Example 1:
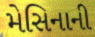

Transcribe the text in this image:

મેસિનાની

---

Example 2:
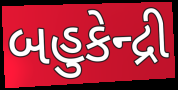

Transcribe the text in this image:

બહુકેન્દ્રી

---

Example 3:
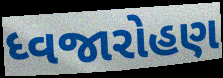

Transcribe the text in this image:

ધ્વજારોહણ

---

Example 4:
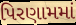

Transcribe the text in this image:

પિરણામમાં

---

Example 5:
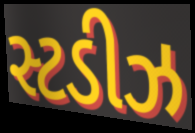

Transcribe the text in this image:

સ્ટડીઝ